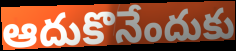
ఆదుకొనేందుకు